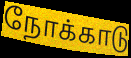
நோக்காடு